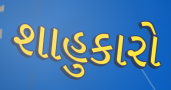
શાહુકારો